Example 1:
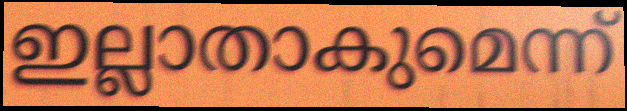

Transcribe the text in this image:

ഇല്ലാതാകുമെന്ന്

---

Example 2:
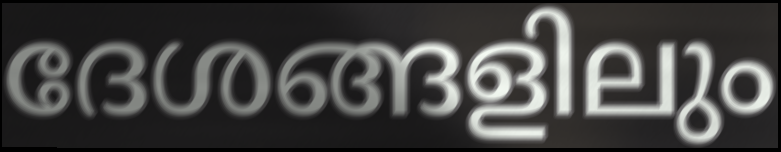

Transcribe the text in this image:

ദേശങ്ങളിലും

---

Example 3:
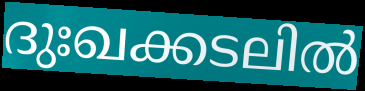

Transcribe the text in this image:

ദുഃഖക്കടലിൽ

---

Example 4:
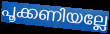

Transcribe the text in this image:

പൂക്കണിയല്ലേ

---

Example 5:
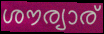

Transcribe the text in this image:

ശൗര്യാര്